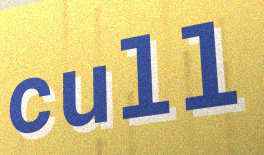
cull